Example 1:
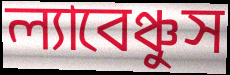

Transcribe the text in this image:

ল্যাবেঞ্চুস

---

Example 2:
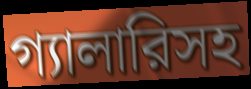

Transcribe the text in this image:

গ্যালারিসহ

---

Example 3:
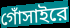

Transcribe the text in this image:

গোঁসাইরে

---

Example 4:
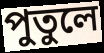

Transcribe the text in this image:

পুতুলে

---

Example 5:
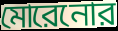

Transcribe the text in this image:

মোরেনোর